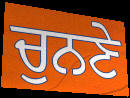
ਚੁਨਣੇ